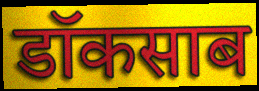
डॉकसाब